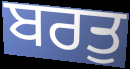
ਬਰਤੁ